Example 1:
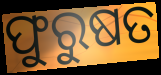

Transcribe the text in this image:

ଫୁରୁଷତ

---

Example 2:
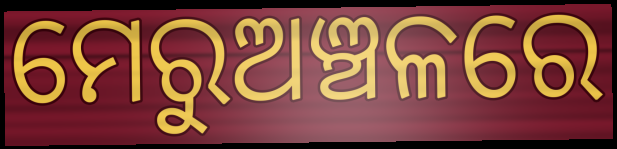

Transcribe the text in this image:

ମେରୁଅଞ୍ଚଳରେ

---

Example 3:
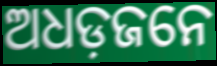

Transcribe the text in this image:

ଅଧଡ଼ଜନେ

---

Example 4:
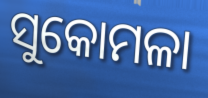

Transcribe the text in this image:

ସୁକୋମଳା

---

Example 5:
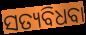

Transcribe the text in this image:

ସତ୍ୟବିଧବା